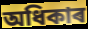
অধিকাৰ